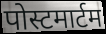
पोस्टमार्टम